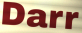
Darr